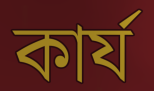
কার্য